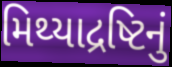
મિથ્યાદ્રષ્ટિનું